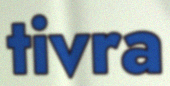
tivra